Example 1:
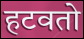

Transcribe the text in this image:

हटवतो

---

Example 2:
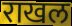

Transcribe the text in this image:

राखल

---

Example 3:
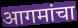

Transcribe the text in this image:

आगमांचा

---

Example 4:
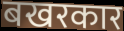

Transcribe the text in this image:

बखरकार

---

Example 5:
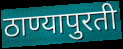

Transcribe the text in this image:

ठाण्यापुरती